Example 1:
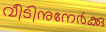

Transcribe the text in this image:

വീടിനുനേർക്കു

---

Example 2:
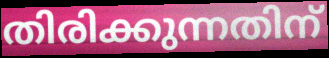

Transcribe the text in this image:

തിരിക്കുന്നതിന്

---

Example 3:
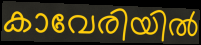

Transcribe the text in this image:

കാവേരിയിൽ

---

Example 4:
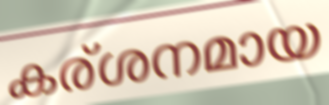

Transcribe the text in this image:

കര്ശനമായ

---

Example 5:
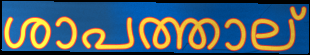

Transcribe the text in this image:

ശാപത്താല്